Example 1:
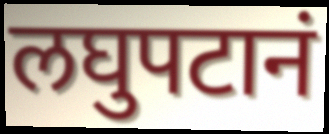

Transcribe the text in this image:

लघुपटानं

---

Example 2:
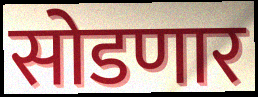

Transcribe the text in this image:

सोडणार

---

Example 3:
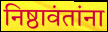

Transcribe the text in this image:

निष्ठावंतांना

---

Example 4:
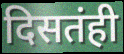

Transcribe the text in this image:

दिसतंही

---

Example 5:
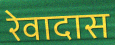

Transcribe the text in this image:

रेवादास